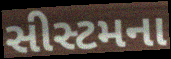
સીસ્ટમના